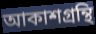
আকাশগ্রন্থি